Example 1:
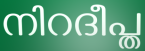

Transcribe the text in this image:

നിറദീപ്ത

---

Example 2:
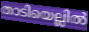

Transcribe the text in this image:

താടിയെല്ലിൽ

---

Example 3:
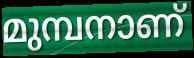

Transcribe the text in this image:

മുമ്പനാണ്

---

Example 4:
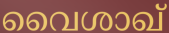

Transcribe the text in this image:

വൈശാഖ്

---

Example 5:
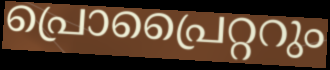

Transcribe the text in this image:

പ്രൊപ്രൈറ്ററും